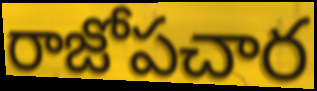
రాజోపచార